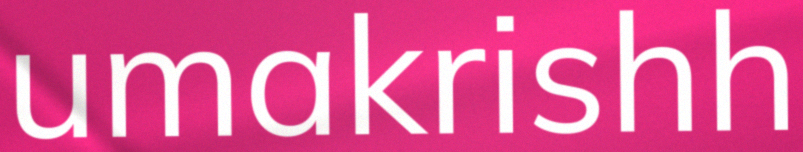
umakrishh